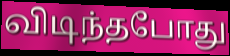
விடிந்தபோது